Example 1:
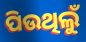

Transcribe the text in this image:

ପିଉଥିଲୁଁ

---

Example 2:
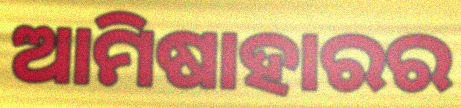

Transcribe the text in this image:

ଆମିଷାହାରର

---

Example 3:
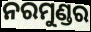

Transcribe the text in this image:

ନରମୁଣ୍ଡର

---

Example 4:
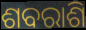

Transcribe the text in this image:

ଶବରାଶି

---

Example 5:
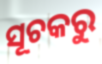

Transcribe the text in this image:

ସୂଚକରୁ